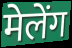
मेलेंग